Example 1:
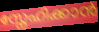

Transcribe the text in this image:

സ്നേഹിക്കാൻ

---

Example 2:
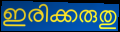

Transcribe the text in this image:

ഇരിക്കരുതു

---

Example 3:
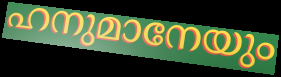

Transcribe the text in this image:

ഹനുമാനേയും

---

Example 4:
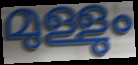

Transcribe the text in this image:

മുള്ളും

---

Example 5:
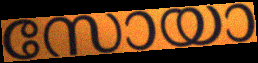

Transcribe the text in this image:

സോയാ